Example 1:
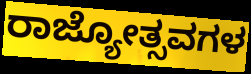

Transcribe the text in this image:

ರಾಜ್ಯೋತ್ಸವಗಳ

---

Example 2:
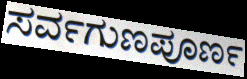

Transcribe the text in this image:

ಸರ್ವಗುಣಪೂರ್ಣ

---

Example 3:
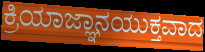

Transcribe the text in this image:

ಕ್ರಿಯಾಜ್ಞಾನಯುಕ್ತವಾದ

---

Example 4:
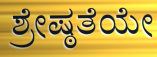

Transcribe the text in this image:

ಶ್ರೇಷ್ಠತೆಯೇ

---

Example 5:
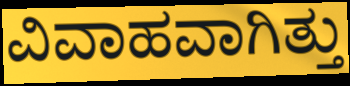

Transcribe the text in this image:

ವಿವಾಹವಾಗಿತ್ತು